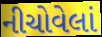
નીચોવેલાં